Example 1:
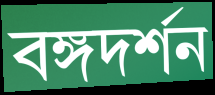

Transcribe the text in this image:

বঙ্গদর্শন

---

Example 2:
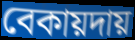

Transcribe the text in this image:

বেকায়দায়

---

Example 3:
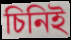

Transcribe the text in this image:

চিনিই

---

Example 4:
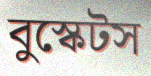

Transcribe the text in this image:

বুস্কেটস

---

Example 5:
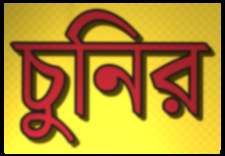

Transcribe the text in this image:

চুনির